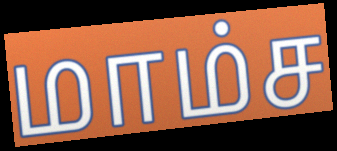
மாம்ச